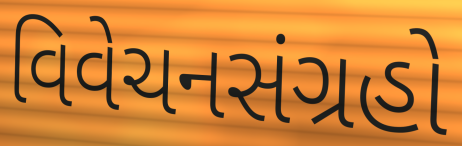
વિવેચનસંગ્રહો